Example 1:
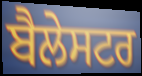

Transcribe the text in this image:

ਬੈਲੇਸਟਰ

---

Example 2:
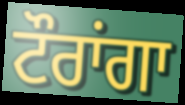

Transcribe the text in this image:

ਟੌਰਾਂਗਾ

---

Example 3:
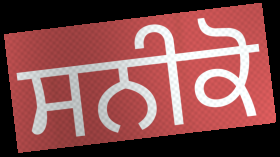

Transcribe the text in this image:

ਸਨੀਕੋ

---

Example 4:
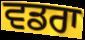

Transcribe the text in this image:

ਵਡਰਾ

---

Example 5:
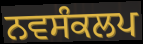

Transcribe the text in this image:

ਨਵਸੰਕਲਪ